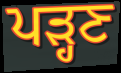
ਪੜ੍ਹਣ